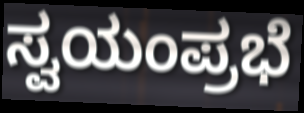
ಸ್ವಯಂಪ್ರಭೆ